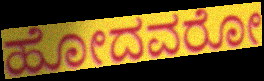
ಹೋದವರೋ